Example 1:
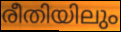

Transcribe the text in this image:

രീതിയിലും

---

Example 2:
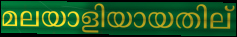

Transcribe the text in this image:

മലയാളിയായതില്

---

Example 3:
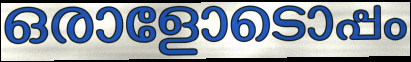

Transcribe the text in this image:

ഒരാളോടൊപ്പം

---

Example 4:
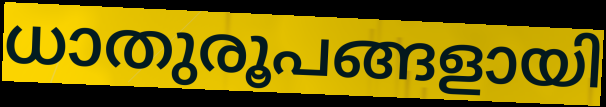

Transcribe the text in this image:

ധാതുരൂപങ്ങളായി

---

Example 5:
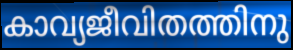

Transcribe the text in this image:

കാവ്യജീവിതത്തിനു